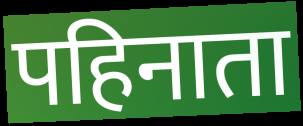
पहिनाता